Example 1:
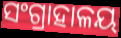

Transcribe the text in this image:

ସଂଗ୍ରାହାଳୟ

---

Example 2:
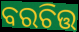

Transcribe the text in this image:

ବରଚିତ୍ତ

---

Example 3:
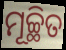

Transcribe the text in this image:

ମୂଚ୍ଛିତ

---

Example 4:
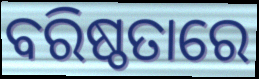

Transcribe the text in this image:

ବରିଷ୍ଠତାରେ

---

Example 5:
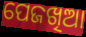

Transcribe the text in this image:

ପେଜଖିଆ